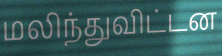
மலிந்துவிட்டன